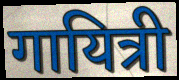
गायित्री